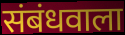
संबंधवाला